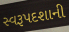
સ્વરૂપદશાની